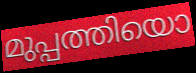
മുപ്പത്തിയൊ